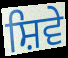
ਸ਼ਿਵੇ